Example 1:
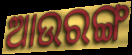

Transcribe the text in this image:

ଆଉରଙ୍ଗ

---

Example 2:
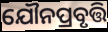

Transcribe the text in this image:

ଯୌନପ୍ରବୃତ୍ତି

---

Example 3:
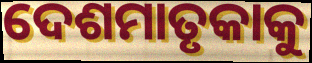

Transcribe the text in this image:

ଦେଶମାତୃକାକୁ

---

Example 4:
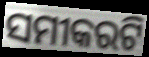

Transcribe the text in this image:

ସମୀକରଟି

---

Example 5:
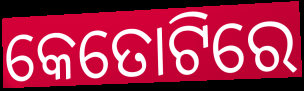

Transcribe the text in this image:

କେତୋଟିରେ